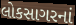
લોકસાગરનાં